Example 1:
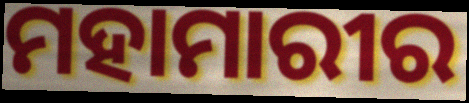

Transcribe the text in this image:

ମହାମାରୀର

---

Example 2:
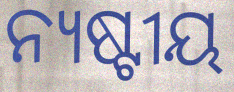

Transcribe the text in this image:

ନ୍ୟଷ୍ଟୀୟ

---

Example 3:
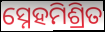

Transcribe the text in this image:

ସ୍ନେହମିଶ୍ରିତ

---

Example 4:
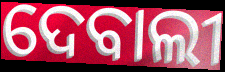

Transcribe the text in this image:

ଦେବାଲୀ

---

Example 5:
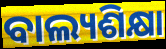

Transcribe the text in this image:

ବାଲ୍ୟଶିକ୍ଷା